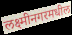
लक्ष्मीनगरमधील